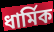
ধাৰ্মিক